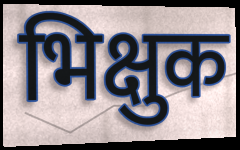
भिक्षुक